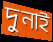
দুনাই